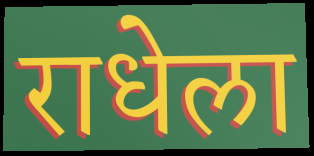
राधेला